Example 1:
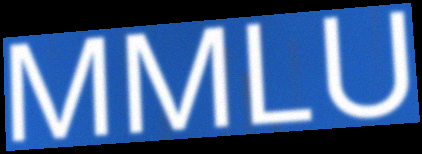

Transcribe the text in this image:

MMLU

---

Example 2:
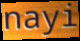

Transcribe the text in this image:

nayi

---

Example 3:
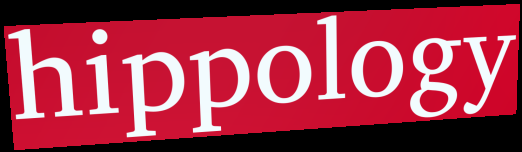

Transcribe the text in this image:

hippology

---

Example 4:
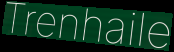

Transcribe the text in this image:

Trenhaile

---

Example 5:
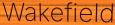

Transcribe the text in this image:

Wakefield